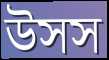
উসস